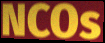
NCOs